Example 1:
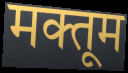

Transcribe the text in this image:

मक्तूम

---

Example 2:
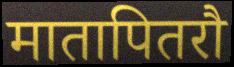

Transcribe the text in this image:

मातापितरौ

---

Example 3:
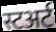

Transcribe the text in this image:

स्टअर्ट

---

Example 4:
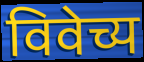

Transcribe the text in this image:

विवेच्य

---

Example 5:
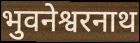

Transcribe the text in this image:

भुवनेश्वरनाथ